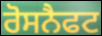
ਰੋਸਨੈਫਟ